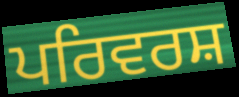
ਪਰਿਵਰਸ਼